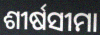
ଶୀର୍ଷସୀମା